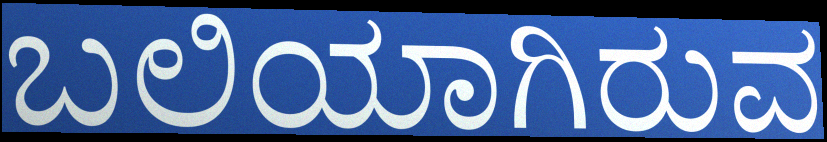
ಬಲಿಯಾಗಿರುವ